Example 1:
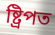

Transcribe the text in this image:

ষ্ট্ৰিপত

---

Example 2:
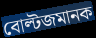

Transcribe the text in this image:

বোল্টজমানক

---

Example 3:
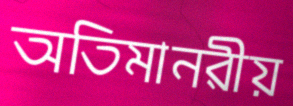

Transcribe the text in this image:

অতিমানৱীয়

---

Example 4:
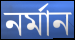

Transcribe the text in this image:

নৰ্মান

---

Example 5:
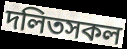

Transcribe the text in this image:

দলিতসকল